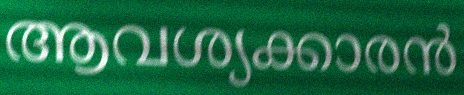
ആവശ്യക്കാരൻ